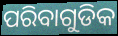
ପରିବାଗୁଡିକ